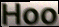
Hoo